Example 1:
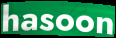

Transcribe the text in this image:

hasoon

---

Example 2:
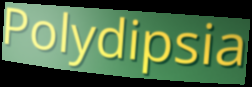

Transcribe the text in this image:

Polydipsia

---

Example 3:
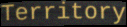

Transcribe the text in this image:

Territory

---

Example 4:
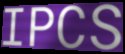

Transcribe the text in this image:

IPCS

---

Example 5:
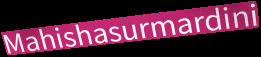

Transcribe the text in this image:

Mahishasurmardini